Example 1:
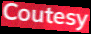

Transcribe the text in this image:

Coutesy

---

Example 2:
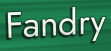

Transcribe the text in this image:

Fandry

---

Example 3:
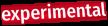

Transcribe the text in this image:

experimental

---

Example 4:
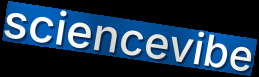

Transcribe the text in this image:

sciencevibe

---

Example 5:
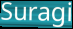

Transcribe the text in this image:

Suragi